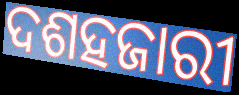
ଦଶହଜାରୀ